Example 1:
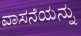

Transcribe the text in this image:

ವಾಸನೆಯನ್ನು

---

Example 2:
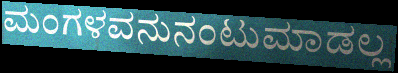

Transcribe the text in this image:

ಮಂಗಳವನುನಂಟುಮಾಡಲ್ಲ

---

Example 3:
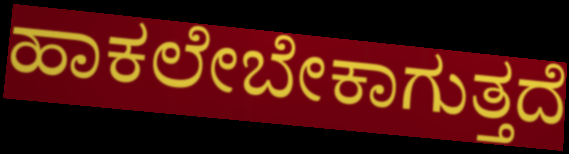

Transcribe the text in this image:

ಹಾಕಲೇಬೇಕಾಗುತ್ತದೆ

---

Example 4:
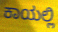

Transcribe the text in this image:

ಕಾಯಲ್ಲಿ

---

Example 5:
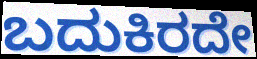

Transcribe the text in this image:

ಬದುಕಿರದೇ